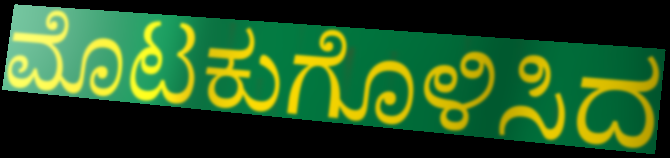
ಮೊಟಕುಗೊಳಿಸಿದ